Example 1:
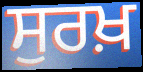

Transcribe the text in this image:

ਸੁਰਖ਼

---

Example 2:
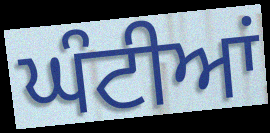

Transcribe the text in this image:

ਘੰਟੀਆਂ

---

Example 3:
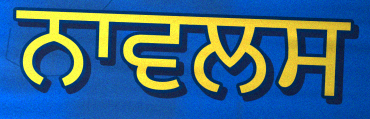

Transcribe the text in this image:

ਨਾਵਲਸ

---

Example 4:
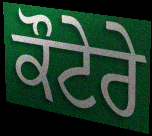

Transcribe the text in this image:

ਕੌਟੇਰੇ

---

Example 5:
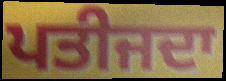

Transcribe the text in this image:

ਪਤੀਜਦਾ